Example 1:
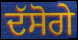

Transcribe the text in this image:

ਦੱਸੋਗੇ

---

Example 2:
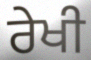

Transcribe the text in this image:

ਰੇਖੀ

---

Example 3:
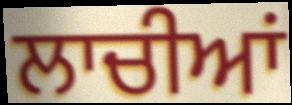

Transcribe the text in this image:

ਲਾਚੀਆਂ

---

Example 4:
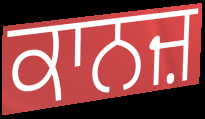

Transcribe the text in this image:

ਕਾਨਜ਼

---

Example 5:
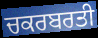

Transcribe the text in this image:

ਚਕਰਬਰਤੀ